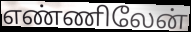
எண்ணிலேன்